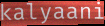
kalyaani